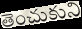
తెంచుకుని